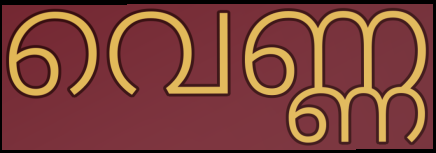
വെണ്ണ